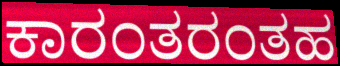
ಕಾರಂತರಂತಹ